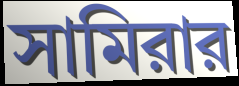
সামিরার